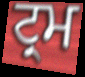
ਟ੍ਰਮ